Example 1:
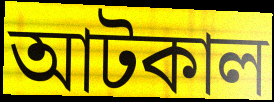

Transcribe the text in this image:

আটকাল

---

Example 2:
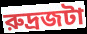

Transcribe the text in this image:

রুদ্রজটা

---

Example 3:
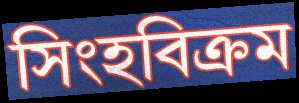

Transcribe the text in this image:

সিংহবিক্রম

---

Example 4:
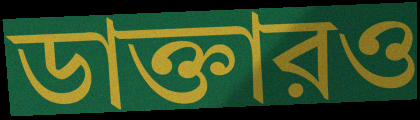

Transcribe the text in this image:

ডাক্তারও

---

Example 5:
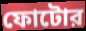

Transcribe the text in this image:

ফোটোর